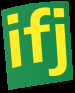
ifj